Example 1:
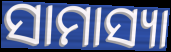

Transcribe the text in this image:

ସାମାସ୍ୟା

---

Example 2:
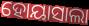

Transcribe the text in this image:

ହୋୟାସାଲା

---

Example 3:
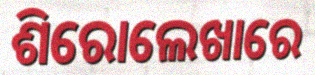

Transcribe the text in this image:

ଶିରୋଲେଖାରେ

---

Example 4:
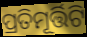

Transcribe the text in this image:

ପ୍ରତିମୂର୍ତ୍ତିଟି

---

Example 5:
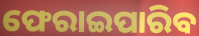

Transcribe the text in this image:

ଫେରାଇପାରିବ